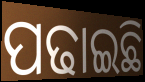
ପଢାଇଛି